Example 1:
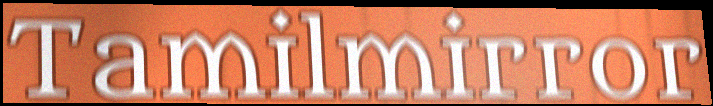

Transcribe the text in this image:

Tamilmirror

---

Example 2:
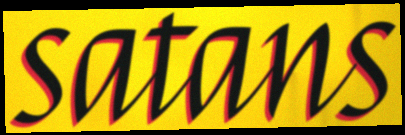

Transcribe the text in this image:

satans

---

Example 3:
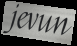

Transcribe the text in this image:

jevun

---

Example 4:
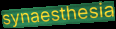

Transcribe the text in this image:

synaesthesia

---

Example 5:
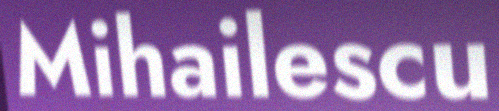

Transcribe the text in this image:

Mihailescu